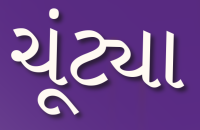
ચૂંટ્યા